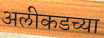
अलीकडच्या